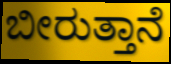
ಬೀರುತ್ತಾನೆ